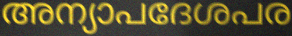
അന്യാപദേശപര